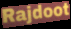
Rajdoot